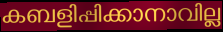
കബളിപ്പിക്കാനാവില്ല